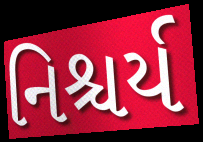
નિશ્ચર્ય